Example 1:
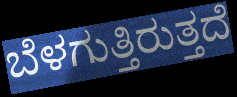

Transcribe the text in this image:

ಬೆಳಗುತ್ತಿರುತ್ತದೆ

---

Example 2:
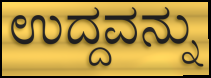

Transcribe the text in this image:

ಉದ್ದವನ್ನು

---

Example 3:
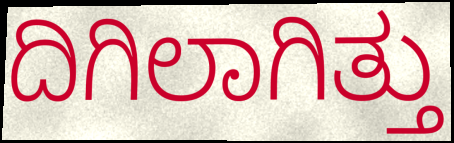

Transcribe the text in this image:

ದಿಗಿಲಾಗಿತ್ತು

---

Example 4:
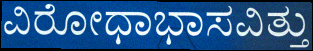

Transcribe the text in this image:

ವಿರೋಧಾಭಾಸವಿತ್ತು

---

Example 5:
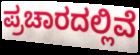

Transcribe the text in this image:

ಪ್ರಚಾರದಲ್ಲಿವೆ